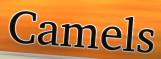
Camels